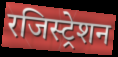
रजिस्‍ट्रेशन